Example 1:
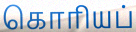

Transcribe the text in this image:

கொரியப்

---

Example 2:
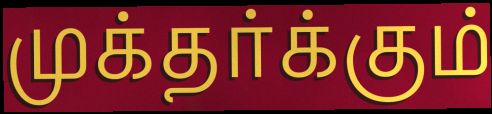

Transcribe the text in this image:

முக்தர்க்கும்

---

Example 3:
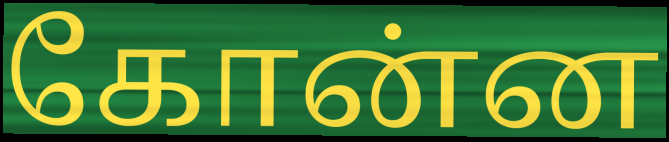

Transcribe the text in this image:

கோன்ன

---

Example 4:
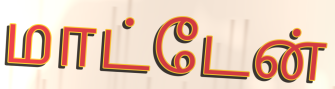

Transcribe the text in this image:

மாட்டேன்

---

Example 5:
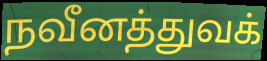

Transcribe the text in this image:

நவீனத்துவக்